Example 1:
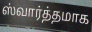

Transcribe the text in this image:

ஸ்வார்த்தமாக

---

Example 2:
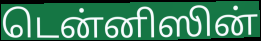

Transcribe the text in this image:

டென்னிஸின்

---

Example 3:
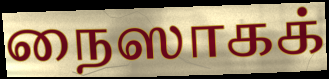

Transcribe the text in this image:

நைஸாகக்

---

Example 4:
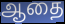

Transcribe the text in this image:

ஆதை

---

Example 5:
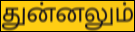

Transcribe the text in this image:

துன்னலும்